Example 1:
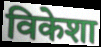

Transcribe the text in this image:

विकेशा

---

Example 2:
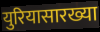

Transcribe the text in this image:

युरियासारख्या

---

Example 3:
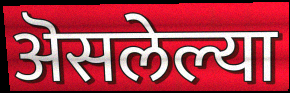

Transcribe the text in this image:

ऄसलेल्या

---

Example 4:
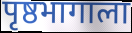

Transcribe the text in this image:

पृष्ठभागाला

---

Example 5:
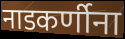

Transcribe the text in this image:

नाडकर्णीना